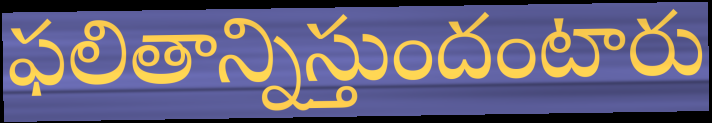
ఫలితాన్నిస్తుందంటారు